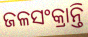
ଜଳସଂକ୍ରାନ୍ତି